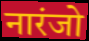
नारंजो